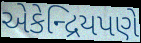
એકેન્દ્રિયપણે